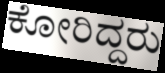
ಕೋರಿದ್ದರು